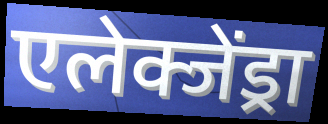
एलेक्जेंड्रा